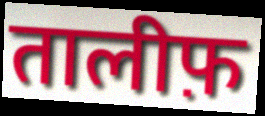
तालीफ़